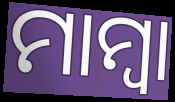
ମାମ୍ଵା